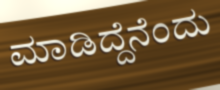
ಮಾಡಿದ್ದೆನೆಂದು